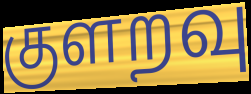
குளறவு